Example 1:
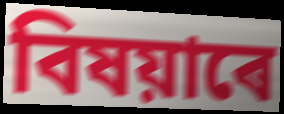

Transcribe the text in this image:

বিষয়াৰে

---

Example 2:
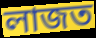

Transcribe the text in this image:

লাজত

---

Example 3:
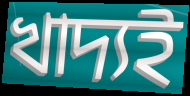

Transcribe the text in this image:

খাদ্যই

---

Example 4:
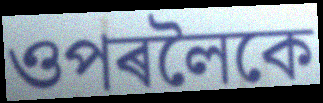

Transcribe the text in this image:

ওপৰলৈকে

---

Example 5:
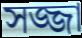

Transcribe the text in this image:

সজ্জা